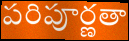
పరిపూర్ణతా